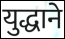
युद्धाने